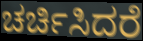
ಚರ್ಚಿಸಿದರೆ